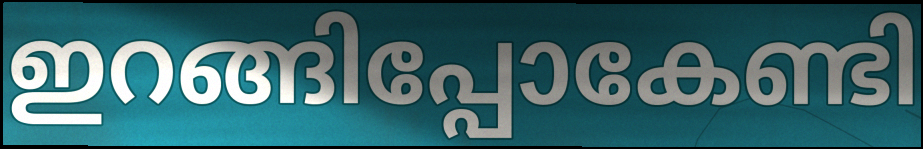
ഇറങ്ങിപ്പോകേണ്ടി